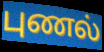
புணல்